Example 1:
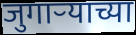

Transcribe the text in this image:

जुगाऱ्याच्या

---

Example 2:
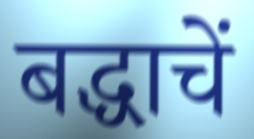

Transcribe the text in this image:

बद्धाचें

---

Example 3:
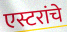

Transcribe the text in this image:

एस्टरांचे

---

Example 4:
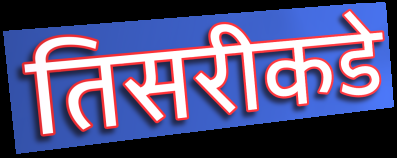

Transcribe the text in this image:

तिसरीकडे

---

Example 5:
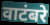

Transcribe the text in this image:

वाटंबरे